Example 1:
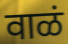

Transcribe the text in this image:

वाळं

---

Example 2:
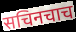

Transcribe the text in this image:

सचिनचाच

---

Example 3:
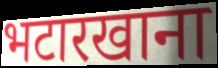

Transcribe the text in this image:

भटारखाना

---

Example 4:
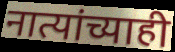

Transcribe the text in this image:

नात्यांच्याही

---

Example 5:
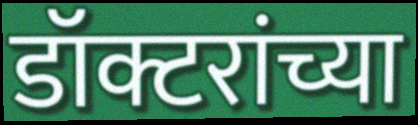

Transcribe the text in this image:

डॉक्टरांच्या